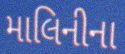
માલિનીના